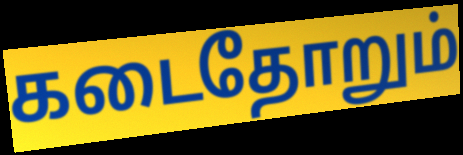
கடைதோறும்